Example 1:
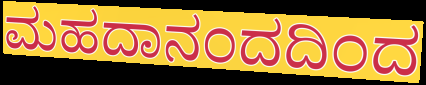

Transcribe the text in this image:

ಮಹದಾನಂದದಿಂದ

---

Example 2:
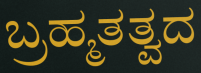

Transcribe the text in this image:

ಬ್ರಹ್ಮತತ್ವದ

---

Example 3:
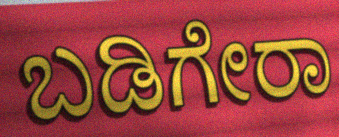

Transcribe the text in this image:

ಬಡಿಗೇರಾ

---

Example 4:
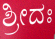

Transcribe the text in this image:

ಶ್ರೀದಃ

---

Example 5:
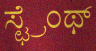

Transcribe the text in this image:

ಸ್ಟ್ರೆಂಥ್